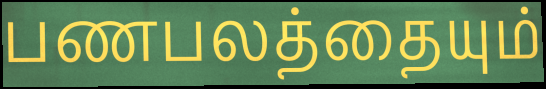
பணபலத்தையும்